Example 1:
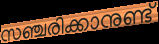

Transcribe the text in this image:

സഞ്ചരിക്കാനുണ്ട്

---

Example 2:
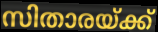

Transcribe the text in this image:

സിതാരയ്ക്ക്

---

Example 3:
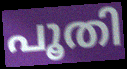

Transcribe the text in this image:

പൂതി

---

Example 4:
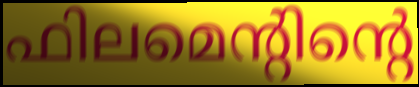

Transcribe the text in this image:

ഫിലമെന്റിന്റെ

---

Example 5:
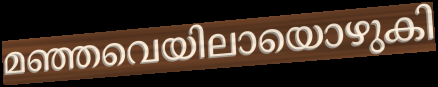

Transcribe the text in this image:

മഞ്ഞവെയിലായൊഴുകി